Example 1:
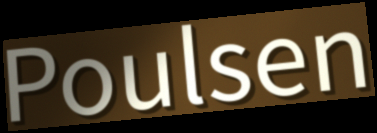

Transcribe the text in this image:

Poulsen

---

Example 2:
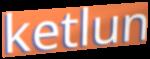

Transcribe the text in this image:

ketlun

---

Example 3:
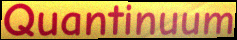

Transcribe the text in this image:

Quantinuum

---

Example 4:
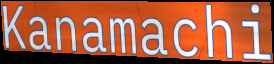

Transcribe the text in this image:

Kanamachi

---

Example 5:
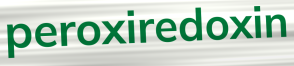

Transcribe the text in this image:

peroxiredoxin